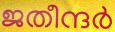
ജതീന്ദർ